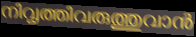
നിവൃത്തിവരുത്തുവാൻ